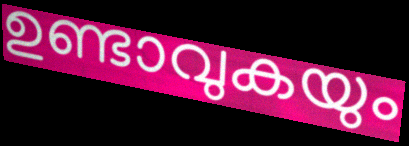
ഉണ്ടാവുകയും